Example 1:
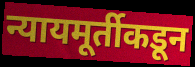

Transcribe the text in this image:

न्यायमूर्तीकडून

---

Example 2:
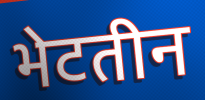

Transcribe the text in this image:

भेटतीन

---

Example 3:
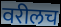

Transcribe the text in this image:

वरीलच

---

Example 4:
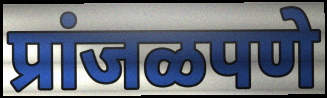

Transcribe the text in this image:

प्रांजळपणे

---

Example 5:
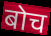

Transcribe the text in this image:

बोच